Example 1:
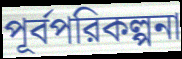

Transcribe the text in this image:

পূর্বপরিকল্পনা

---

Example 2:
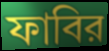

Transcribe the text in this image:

ফাবির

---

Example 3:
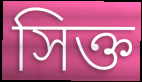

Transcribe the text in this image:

সিক্ত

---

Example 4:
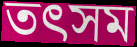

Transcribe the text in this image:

তৎসম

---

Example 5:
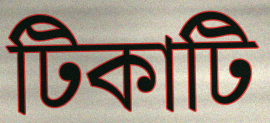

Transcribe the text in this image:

টিকাটি